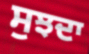
ਸੁਝਦਾ